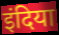
इंदिया